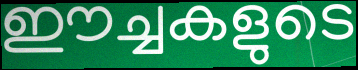
ഈച്ചകളുടെ